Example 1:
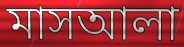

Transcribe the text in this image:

মাসআলা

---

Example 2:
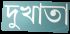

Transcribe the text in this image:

দুখাতা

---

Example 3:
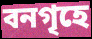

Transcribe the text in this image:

বনগৃহে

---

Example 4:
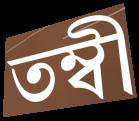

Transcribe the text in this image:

তম্বী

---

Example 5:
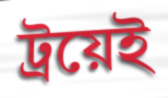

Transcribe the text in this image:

ট্রয়েই